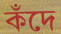
কঁদে